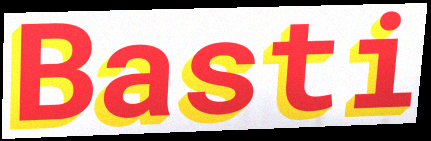
Basti